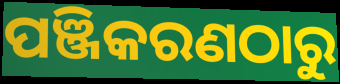
ପଞ୍ଜିକରଣଠାରୁ